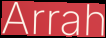
Arrah